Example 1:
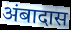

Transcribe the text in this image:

अंबादास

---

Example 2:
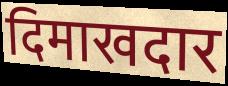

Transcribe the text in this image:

दिमाखदार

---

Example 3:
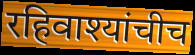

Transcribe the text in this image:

रहिवाश्यांचीच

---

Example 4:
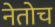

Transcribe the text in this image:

नेतोच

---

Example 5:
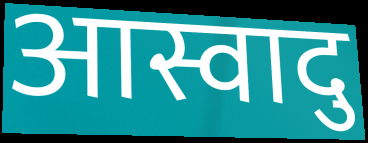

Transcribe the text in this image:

आस्वादु